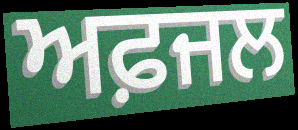
ਅਫ਼ਜਲ